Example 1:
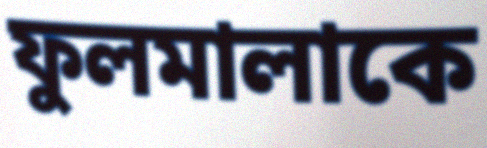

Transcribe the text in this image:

ফুলমালাকে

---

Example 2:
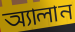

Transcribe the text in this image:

অ্যালান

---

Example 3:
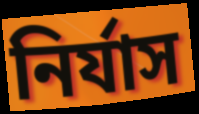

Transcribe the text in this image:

নির্যাস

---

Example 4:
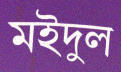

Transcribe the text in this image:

মইদুল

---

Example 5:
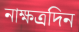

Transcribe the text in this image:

নাক্ষত্রদিন